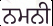
ਨਮਨੀ